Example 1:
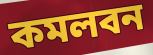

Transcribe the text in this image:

কমলবন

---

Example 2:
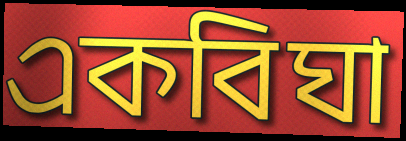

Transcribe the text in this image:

একবিঘা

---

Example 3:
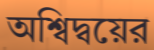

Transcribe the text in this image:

অশ্বিদ্বয়ের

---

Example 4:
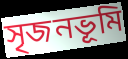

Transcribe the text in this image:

সৃজনভূমি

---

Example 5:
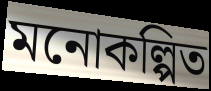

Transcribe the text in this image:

মনোকল্পিত